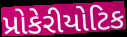
પ્રોકેરીયોટિક